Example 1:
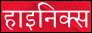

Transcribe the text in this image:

हाइनिक्स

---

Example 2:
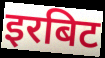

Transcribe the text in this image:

इरबिट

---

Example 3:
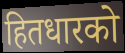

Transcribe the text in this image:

हितधारको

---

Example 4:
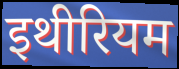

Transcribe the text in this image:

इथीरियम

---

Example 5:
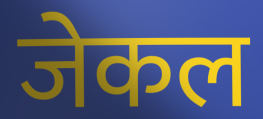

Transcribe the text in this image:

जेकल